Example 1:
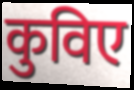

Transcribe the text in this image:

कुविए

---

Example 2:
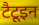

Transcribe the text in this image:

टैटूइन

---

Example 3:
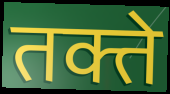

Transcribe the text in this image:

तक्ते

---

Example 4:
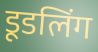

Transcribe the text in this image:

डूडलिंग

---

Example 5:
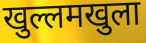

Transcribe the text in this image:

खुल्लमखुला